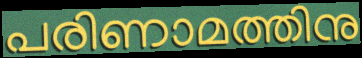
പരിണാമത്തിനു